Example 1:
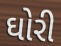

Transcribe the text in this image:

ઘોરી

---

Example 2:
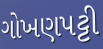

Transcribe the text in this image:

ગોખણપટ્ટી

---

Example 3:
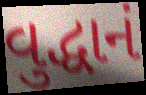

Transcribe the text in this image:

વુદ્ધાનં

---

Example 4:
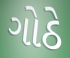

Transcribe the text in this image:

ગોઠે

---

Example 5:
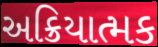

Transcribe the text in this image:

અક્રિયાત્મક